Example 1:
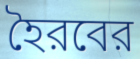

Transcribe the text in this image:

হৈরবের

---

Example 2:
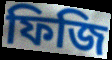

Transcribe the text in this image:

ফিজি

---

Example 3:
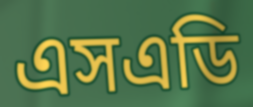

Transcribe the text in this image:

এসএডি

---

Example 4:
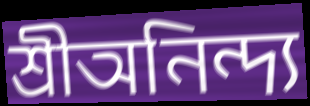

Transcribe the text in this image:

শ্রীঅনিন্দ্য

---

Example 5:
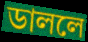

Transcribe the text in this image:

ডাললে